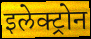
इलेक्ट्रोन